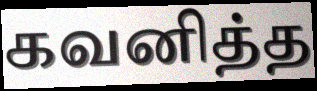
கவனித்த